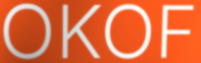
OKOF